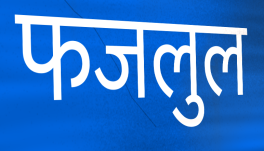
फजलुल